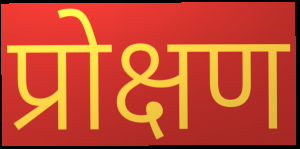
प्रोक्षण